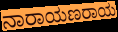
ನಾರಾಯಣರಾಯ